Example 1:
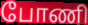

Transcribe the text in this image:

போணி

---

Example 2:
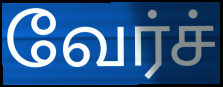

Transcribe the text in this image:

வேர்ச்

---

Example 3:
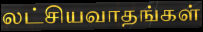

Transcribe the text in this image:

லட்சியவாதங்கள்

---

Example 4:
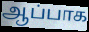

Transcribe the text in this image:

ஆப்பாக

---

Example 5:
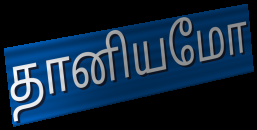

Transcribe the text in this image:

தானியமோ